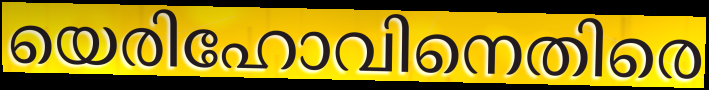
യെരിഹോവിനെതിരെ